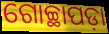
ଗୋଚ୍ଛାପଡ଼ା